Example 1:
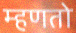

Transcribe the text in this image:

म्हणतो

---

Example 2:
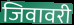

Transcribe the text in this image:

जिवावरी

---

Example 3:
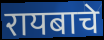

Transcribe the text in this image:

रायबाचे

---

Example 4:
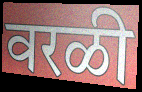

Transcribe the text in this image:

वरळी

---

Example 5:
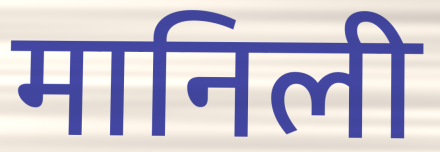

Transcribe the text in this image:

मानिली